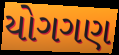
યોગગણ